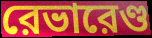
রেভারেণ্ড